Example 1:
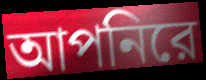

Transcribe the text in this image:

আপনিরে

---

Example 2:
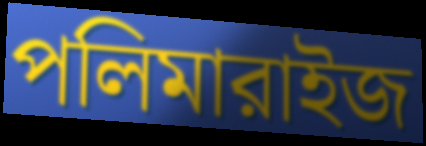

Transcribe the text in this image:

পলিমারাইজ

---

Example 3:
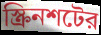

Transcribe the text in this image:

স্ক্রিনশটের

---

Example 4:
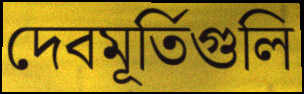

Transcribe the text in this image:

দেবমূর্তিগুলি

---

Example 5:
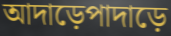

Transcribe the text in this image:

আদাড়েপাদাড়ে